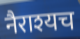
नैराश्यच